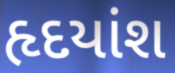
હૃદયાંશ